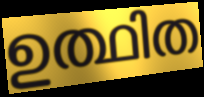
ഉത്ഥിത